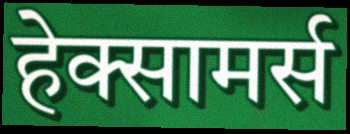
हेक्सामर्स